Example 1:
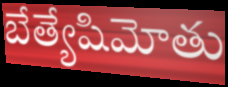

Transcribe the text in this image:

బేత్యేషిమోతు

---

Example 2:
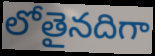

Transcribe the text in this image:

లోతైనదిగా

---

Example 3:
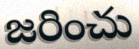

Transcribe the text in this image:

జరించు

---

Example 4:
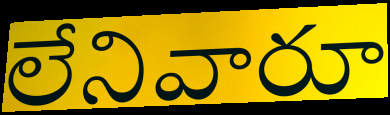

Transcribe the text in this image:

లేనివారూ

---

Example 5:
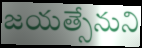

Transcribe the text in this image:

జయత్సేనుని